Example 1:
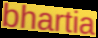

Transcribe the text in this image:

bhartia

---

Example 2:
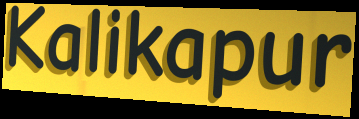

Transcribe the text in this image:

Kalikapur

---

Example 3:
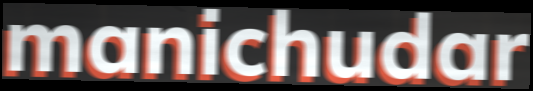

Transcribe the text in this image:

manichudar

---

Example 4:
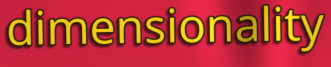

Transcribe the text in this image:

dimensionality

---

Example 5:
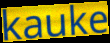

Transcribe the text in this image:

kauke